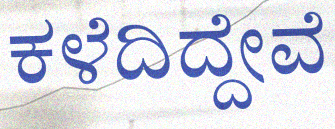
ಕಳೆದಿದ್ದೇವೆ